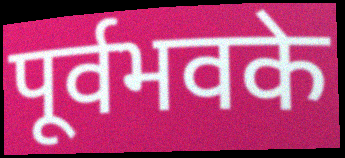
पूर्वभवके